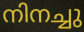
നിനച്ചു